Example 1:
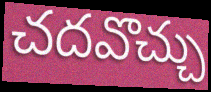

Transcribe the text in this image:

చదవొచ్చు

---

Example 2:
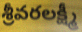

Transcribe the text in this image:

శ్రీవరలక్ష్మీ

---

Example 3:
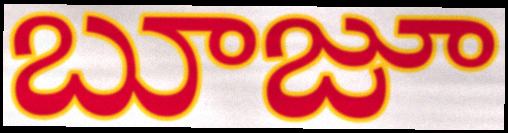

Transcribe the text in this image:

బూజూ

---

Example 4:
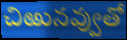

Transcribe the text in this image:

చిఱునవ్వుతో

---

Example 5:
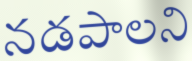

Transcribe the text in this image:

నడపాలని